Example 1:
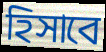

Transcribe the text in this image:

হিসাবে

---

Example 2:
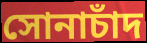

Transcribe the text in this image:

সোনাচাঁদ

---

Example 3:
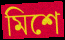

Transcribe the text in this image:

মিশে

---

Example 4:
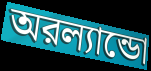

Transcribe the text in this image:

অরল্যান্ডো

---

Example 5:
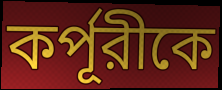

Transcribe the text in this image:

কর্পূরীকে